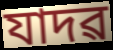
যাদৱ